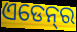
ଏଡେନ୍‍ର